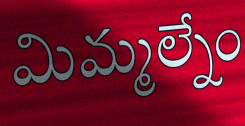
మిమ్మల్నేం